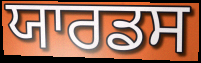
ਯਾਰਡਸ